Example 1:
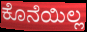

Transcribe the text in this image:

ಕೊನೆಯಿಲ್ಲ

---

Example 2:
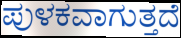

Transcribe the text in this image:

ಪುಳಕವಾಗುತ್ತದೆ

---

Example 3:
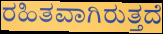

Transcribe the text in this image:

ರಹಿತವಾಗಿರುತ್ತದೆ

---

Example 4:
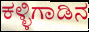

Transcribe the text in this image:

ಕಳ್ಳಿಗಾಡಿನ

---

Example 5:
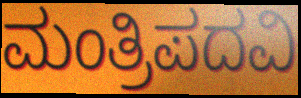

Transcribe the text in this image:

ಮಂತ್ರಿಪದವಿ